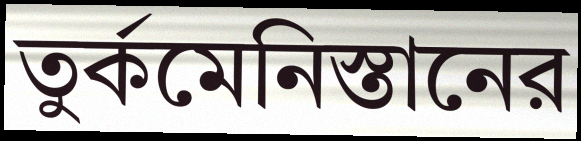
তুর্কমেনিস্তানের